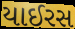
યાઈરસ